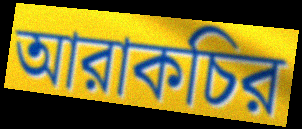
আরাকচির